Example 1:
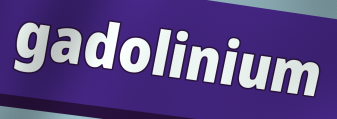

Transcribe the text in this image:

gadolinium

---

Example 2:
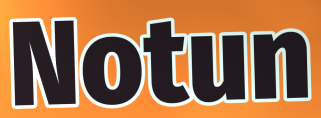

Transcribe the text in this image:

Notun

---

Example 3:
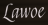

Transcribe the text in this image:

Lawoe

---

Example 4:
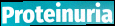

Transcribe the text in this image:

Proteinuria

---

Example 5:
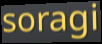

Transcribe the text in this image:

soragi